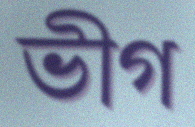
ভীগ